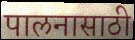
पालनासाठी